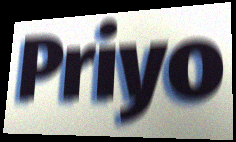
Priyo